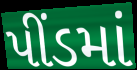
પીંડમાં